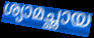
ശ്യാമച്ഛായ